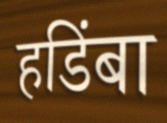
हडिंबा